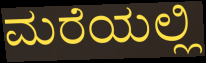
ಮರೆಯಲ್ಲಿ